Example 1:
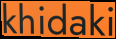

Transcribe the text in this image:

khidaki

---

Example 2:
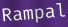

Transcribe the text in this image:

Rampal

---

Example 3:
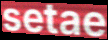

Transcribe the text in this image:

setae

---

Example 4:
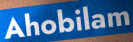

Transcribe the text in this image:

Ahobilam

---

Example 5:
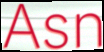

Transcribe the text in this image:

Asn